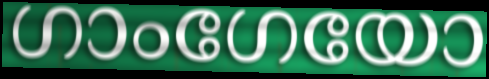
ഗാംഗേയോ